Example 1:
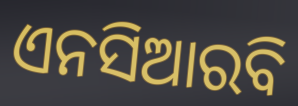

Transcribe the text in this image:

ଏନସିଆରବି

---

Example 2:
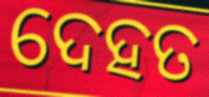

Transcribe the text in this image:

ଦେହତ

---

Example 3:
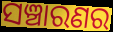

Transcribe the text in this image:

ସଞ୍ଚାରଣର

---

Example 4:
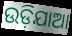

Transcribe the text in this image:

ଉଡ଼ିଯାଆ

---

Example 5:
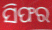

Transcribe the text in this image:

ସିଫର